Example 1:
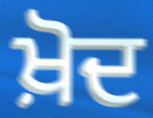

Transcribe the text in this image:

ਖ਼ੋਦ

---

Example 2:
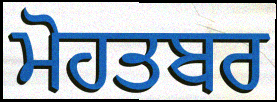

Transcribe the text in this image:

ਮੋਹਤਬਰ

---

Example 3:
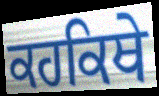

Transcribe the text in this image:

ਕਹਕਿਥੇ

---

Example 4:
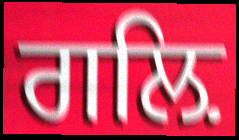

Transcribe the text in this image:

ਗਲ਼ਿ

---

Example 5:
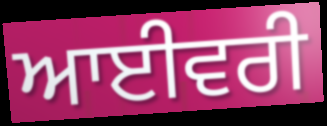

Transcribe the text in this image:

ਆਈਵਰੀ